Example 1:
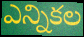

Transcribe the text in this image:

ఎన్నికల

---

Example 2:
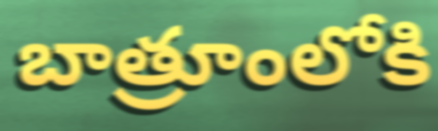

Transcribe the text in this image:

బాత్రూంలోకి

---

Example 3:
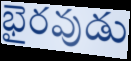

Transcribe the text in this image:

భైరవుడు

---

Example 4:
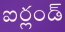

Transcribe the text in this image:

ఐర్లండ్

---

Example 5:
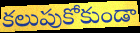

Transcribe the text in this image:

కలుపుకోకుండా